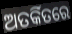
ଅତର୍କିତରେ